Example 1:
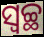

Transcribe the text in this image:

ସ୍ୱଚ୍ଛ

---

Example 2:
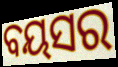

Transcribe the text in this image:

ବୟସର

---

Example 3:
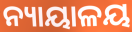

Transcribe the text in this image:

ନ୍ୟାୟାଳୟ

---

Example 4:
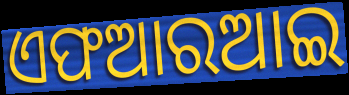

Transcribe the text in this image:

ଏଫଆରଆଇ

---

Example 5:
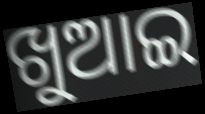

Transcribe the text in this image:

ଖୁଆଇ